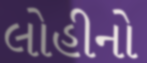
લોહીનો